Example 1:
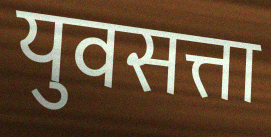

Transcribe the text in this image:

युवसत्ता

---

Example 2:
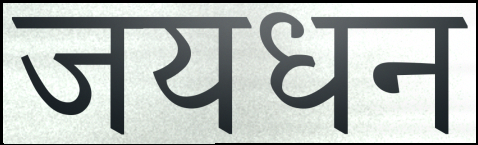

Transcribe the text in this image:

जयधन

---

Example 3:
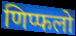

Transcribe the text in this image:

णिप्फलो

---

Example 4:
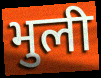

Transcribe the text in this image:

भुली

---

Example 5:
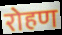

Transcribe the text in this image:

रोहण